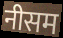
नीसम